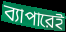
ব্যাপারেই